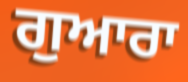
ਗੁਆਰਾ